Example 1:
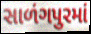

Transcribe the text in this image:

સાળંગપુરમાં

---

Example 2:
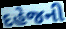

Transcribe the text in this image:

દહેજની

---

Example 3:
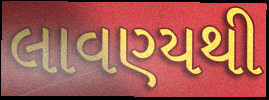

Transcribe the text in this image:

લાવણ્યથી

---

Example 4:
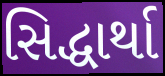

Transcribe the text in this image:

સિદ્ધાર્થા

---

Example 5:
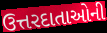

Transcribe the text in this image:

ઉત્તરદાતાઓની